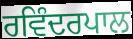
ਰਵਿੰਦਰਪਾਲ